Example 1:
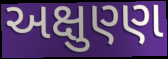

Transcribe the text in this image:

અક્ષુણ્ણ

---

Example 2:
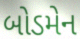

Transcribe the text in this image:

બોડમેન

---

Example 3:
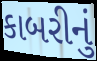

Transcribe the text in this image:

કાબરીનું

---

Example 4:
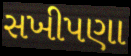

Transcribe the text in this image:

સખીપણા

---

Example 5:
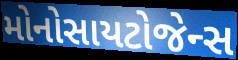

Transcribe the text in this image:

મોનોસાયટોજેન્સ